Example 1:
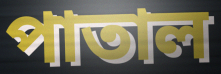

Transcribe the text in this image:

পাতাল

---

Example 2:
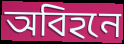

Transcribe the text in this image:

অবিহনে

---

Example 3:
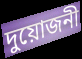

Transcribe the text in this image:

দুয়োজনী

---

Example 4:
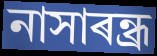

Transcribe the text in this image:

নাসাৰন্ধ্ৰ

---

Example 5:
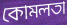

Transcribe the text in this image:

কোমলতা